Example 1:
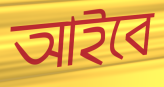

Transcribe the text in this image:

আইবে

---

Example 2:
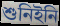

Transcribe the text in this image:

শুনিইনি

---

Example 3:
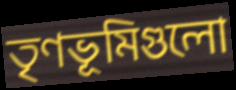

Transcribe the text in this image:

তৃণভূমিগুলো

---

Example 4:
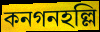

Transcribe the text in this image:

কনগনহল্লি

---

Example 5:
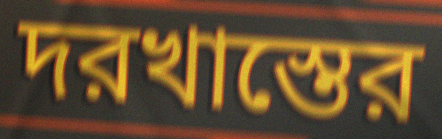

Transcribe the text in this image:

দরখাস্তের